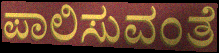
ಪಾಲಿಸುವಂತೆ